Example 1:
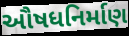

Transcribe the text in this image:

ઔષધનિર્માણ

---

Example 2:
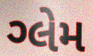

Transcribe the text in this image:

ગ્લેમ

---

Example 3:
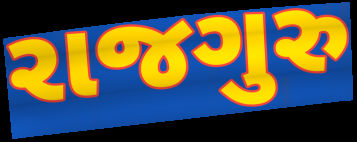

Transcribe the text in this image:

રાજગુરુ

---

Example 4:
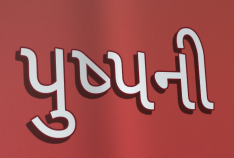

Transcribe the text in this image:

પુષ્પની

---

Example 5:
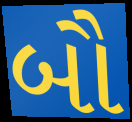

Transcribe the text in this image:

બૌ